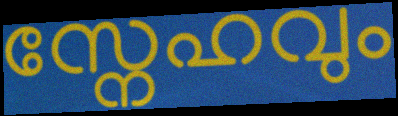
സ്നേഹവും